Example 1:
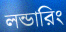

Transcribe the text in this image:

লন্ডারিং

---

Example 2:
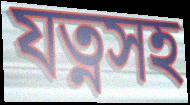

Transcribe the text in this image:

যত্নসহ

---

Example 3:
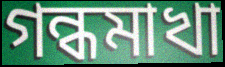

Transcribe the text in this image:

গন্ধমাখা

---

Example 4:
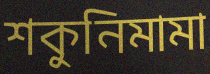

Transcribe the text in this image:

শকুনিমামা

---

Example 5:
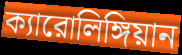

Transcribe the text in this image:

ক্যারোলিঙ্গিয়ান